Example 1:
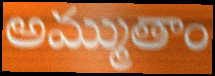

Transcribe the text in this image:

అమ్ముతాం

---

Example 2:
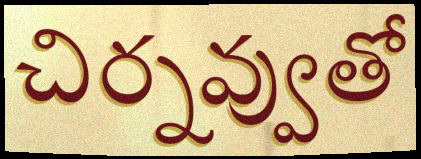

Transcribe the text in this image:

చిర్నవ్వుతో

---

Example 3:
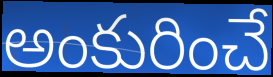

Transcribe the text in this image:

అంకురించే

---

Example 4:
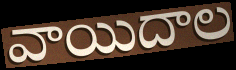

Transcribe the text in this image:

వాయిదాల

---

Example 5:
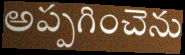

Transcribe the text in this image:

అప్పగించెను